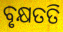
ବୃକ୍ଷତତି